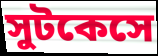
সুটকেসে